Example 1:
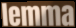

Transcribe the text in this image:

lemma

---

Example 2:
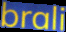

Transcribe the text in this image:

brali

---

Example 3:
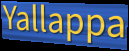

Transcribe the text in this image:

Yallappa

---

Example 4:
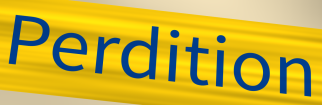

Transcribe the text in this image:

Perdition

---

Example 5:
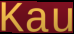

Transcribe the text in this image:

Kau